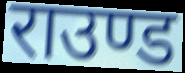
राउण्ड